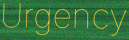
Urgency